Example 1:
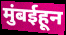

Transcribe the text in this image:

मुंबईहून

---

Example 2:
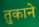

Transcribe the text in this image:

तुकाने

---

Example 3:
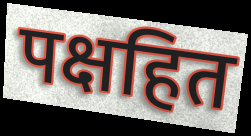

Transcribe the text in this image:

पक्षहित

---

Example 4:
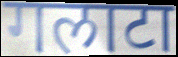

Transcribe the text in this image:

गलाटा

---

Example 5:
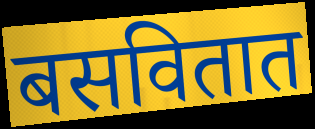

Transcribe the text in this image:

बसवितात